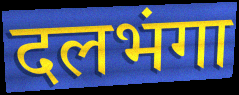
दलभंगा